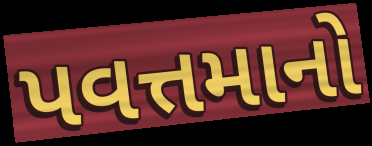
પવત્તમાનો